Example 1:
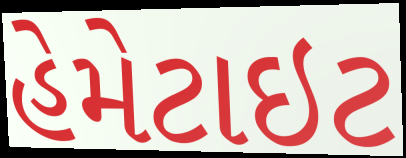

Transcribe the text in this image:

હેમેટાઇટ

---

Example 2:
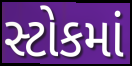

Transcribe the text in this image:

સ્ટોકમાં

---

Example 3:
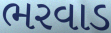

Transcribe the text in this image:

ભરવાડ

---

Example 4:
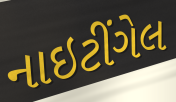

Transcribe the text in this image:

નાઇટીંગેલ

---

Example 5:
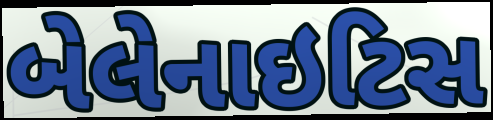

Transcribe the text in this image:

બેલેનાઇટિસ